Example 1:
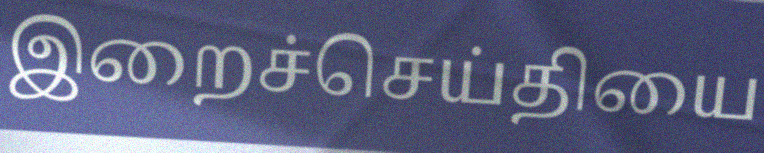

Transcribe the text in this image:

இறைச்செய்தியை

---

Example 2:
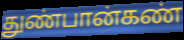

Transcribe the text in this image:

துண்பான்கண்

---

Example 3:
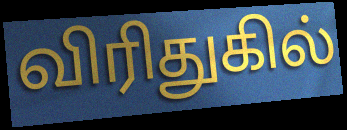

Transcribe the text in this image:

விரிதுகில்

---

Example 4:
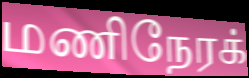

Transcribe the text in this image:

மணிநேரக்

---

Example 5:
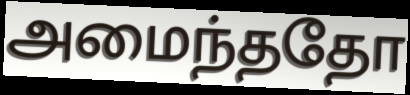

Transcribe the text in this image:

அமைந்ததோ